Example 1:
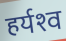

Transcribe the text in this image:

हर्यश्व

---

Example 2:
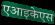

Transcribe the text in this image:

एआइकेएस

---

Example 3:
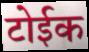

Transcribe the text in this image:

टोईक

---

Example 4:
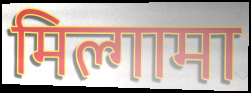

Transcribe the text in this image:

मिल्गामा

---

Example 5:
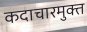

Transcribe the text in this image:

कदाचारमुक्त